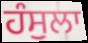
ਹੰਸੁਲਾ